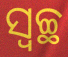
ସ୍ୱଚ୍ଛ